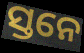
ସ୍ତନେ